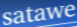
satawe